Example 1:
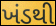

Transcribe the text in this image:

ખંડથી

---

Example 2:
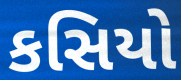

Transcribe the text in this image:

કસિયો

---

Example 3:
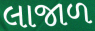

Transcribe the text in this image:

લાજાળ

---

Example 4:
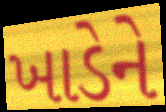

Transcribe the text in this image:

ખાડેને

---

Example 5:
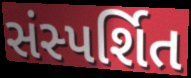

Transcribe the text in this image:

સંસ્પર્શિત